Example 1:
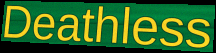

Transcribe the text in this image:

Deathless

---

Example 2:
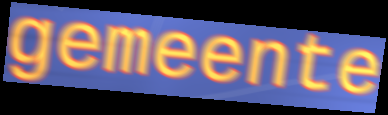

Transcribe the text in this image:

gemeente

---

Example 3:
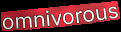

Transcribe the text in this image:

omnivorous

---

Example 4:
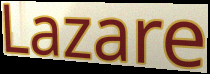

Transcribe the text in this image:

Lazare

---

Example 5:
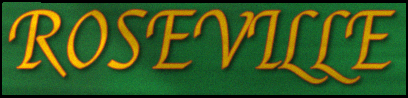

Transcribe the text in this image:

ROSEVILLE